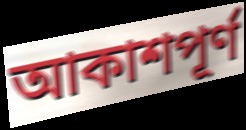
আকাশপূর্ণ